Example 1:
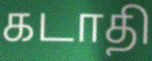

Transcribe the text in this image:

கடாதி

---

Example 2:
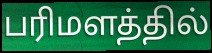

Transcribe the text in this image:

பரிமளத்தில்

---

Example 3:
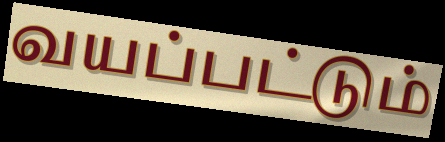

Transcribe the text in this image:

வயப்பட்டும்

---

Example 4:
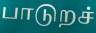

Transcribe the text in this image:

பாடுறச்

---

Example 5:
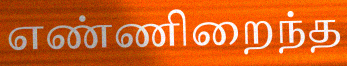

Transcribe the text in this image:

எண்ணிறைந்த